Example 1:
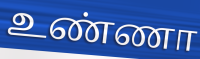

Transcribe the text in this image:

உண்ணா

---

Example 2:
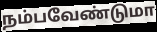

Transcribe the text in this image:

நம்பவேண்டுமா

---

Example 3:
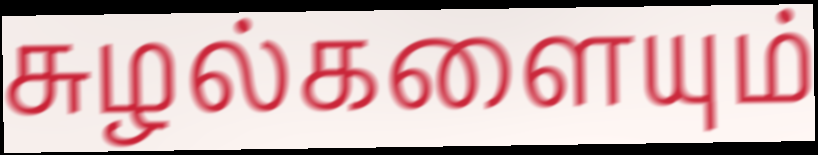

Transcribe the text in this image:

சுழல்களையும்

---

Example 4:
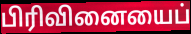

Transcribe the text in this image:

பிரிவினையைப்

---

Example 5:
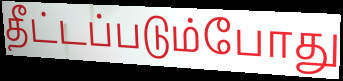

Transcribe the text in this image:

தீட்டப்படும்போது